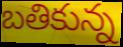
బతికున్న